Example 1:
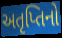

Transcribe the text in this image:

અતૃપ્તિનો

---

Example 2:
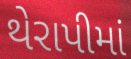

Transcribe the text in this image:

થેરાપીમાં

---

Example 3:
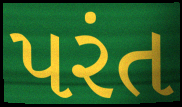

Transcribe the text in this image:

પરંત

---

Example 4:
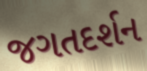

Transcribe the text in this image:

જગતદર્શન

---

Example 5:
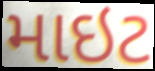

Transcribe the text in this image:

માઇટ